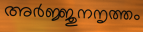
അർജ്ജുനനൃത്തം